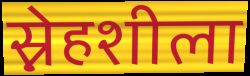
स्नेहशीला